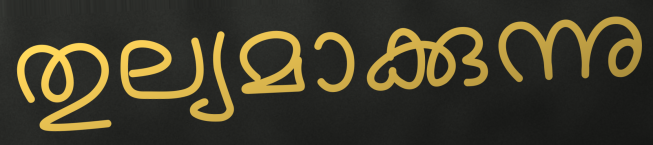
തുല്യമാക്കുന്നു